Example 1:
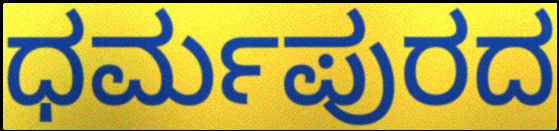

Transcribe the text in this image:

ಧರ್ಮಪುರದ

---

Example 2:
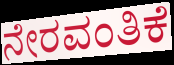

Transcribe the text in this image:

ನೇರವಂತಿಕೆ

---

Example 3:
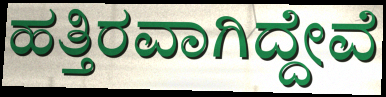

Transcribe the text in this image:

ಹತ್ತಿರವಾಗಿದ್ದೇವೆ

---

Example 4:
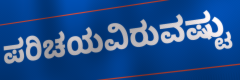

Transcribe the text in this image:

ಪರಿಚಯವಿರುವಷ್ಟು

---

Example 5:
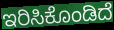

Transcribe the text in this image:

ಇರಿಸಿಕೊಂಡಿದೆ